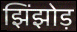
झिंझोड़